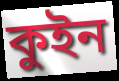
কুইন